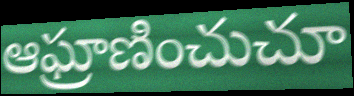
ఆఘ్రాణించుచూ